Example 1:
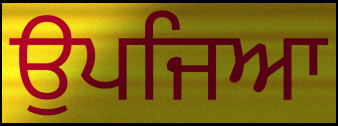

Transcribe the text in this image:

ਉਪਜਿਆ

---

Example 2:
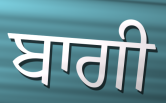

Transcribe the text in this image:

ਬਾਗੀ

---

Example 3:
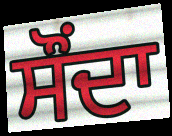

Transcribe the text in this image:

ਸੌਂਦਾ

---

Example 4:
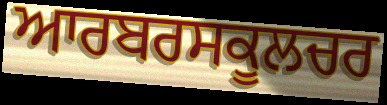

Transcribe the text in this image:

ਆਰਬਰਸਕੂਲਚਰ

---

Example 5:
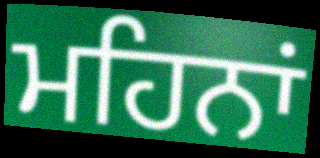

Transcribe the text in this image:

ਮਹਿਨਾਂ